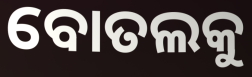
ବୋତଲକୁ